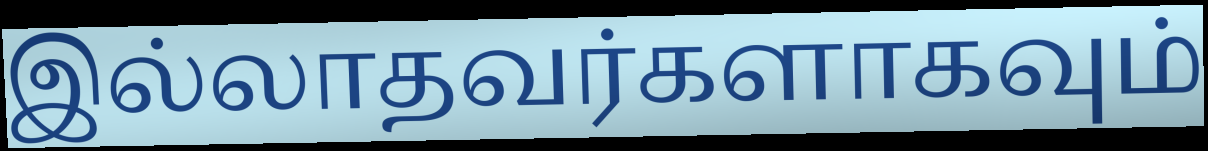
இல்லாதவர்களாகவும்